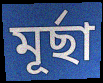
মূর্ছা